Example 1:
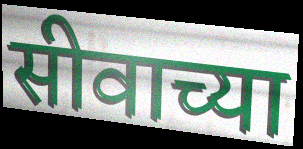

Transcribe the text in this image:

सीवाच्या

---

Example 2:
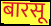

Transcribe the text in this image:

बारसू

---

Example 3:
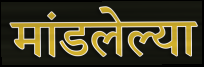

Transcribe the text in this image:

मांडलेल्या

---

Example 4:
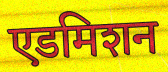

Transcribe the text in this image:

एडमिशन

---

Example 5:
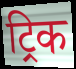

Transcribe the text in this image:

ट्रिक